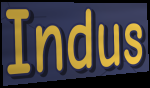
Indus